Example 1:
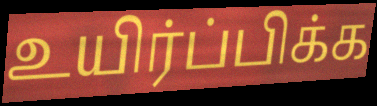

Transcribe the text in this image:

உயிர்ப்பிக்க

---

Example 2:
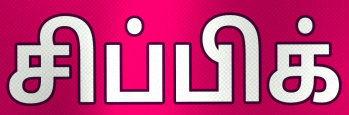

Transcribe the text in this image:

சிப்பிக்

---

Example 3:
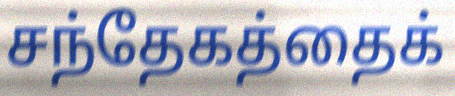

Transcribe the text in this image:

சந்தேகத்தைக்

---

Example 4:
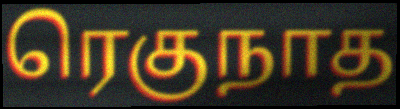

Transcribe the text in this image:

ரெகுநாத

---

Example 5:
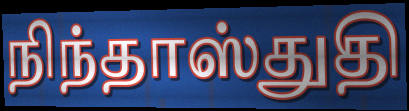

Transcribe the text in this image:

நிந்தாஸ்துதி